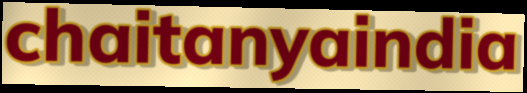
chaitanyaindia